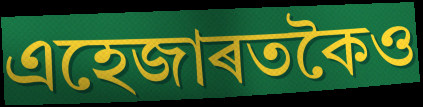
এহেজাৰতকৈও